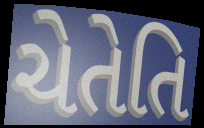
ચેતેતિ